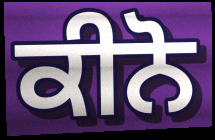
ਕੀਨੋ